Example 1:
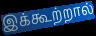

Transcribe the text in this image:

இக்கூற்றால்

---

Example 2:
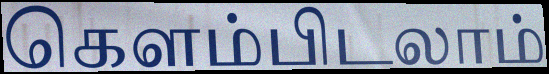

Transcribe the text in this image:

கெளம்பிடலாம்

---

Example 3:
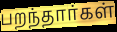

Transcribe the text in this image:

பறந்தார்கள்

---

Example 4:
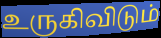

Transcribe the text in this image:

உருகிவிடும்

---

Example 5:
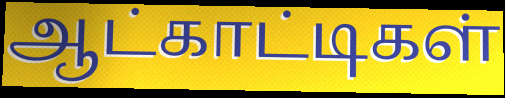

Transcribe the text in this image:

ஆட்காட்டிகள்